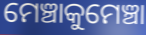
ମେଞ୍ଚାକୁମେଞ୍ଚା